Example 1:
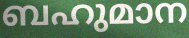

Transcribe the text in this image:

ബഹുമാന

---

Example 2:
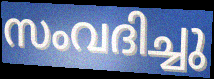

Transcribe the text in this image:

സംവദിച്ചു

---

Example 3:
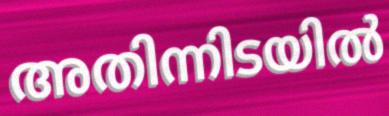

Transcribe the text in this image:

അതിന്നിടയിൽ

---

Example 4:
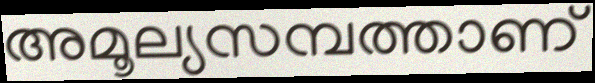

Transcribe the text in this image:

അമൂല്യസമ്പത്താണ്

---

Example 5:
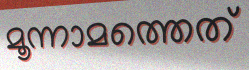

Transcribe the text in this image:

മൂന്നാമത്തെത്